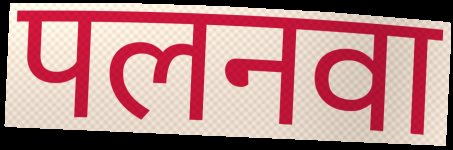
पलनवा